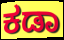
ಕಡಾ